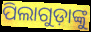
ପିଲାଗୁଡ଼ାଙ୍କୁ